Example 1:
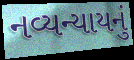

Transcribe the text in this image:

નવ્યન્યાયનું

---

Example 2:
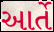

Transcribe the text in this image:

આર્તે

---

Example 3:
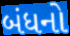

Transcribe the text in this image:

બંધનો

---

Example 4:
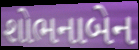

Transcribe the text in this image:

શોભનાબેન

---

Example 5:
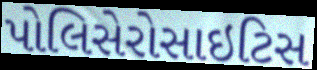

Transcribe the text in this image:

પોલિસેરોસાઇટિસ